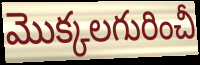
మొక్కలగురించీ